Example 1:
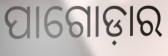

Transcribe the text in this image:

ପାଗୋଡ଼ାର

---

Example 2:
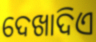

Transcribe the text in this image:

ଦେଖାଦିଏ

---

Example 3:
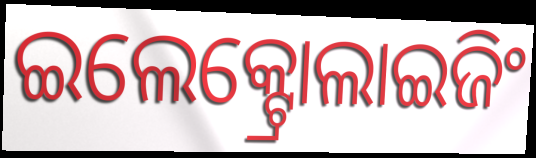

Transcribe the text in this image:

ଇଲେକ୍ଟ୍ରୋଲାଇଜିଂ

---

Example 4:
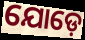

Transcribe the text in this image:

ଯୋଡ଼େ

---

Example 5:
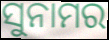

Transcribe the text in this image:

ସୁନାମର